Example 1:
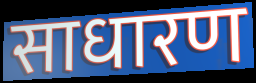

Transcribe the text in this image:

साधारण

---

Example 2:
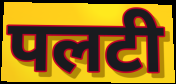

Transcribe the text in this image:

पलटी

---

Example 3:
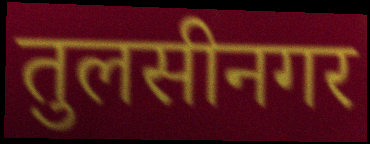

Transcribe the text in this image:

तुलसीनगर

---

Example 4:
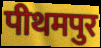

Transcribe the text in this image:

पीथमपुर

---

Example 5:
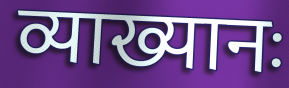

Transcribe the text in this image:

व्याख्यानः